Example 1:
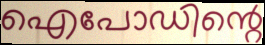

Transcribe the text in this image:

ഐപോഡിന്റെ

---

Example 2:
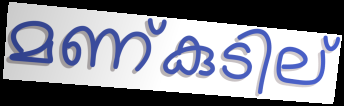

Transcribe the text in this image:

മണ്കുടില്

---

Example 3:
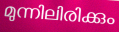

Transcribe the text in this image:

മുന്നിലിരിക്കും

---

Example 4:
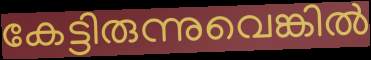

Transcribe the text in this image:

കേട്ടിരുന്നുവെങ്കിൽ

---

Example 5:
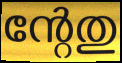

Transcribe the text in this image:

ന്റേതു